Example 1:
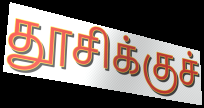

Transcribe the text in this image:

தூசிக்குச்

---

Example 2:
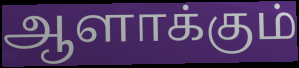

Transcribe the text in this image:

ஆளாக்கும்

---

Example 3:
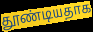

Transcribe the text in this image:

தூண்டியதாக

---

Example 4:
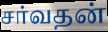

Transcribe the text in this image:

சர்வதன்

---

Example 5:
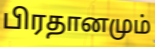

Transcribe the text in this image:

பிரதானமும்